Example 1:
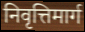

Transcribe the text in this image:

निवृत्तिमार्ग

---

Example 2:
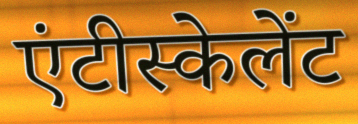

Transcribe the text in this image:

एंटीस्केलेंट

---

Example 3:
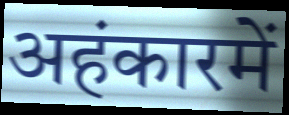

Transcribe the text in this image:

अहंकारमें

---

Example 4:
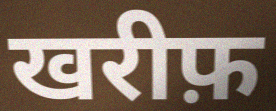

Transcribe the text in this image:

खरीफ़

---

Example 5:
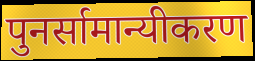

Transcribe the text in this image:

पुनर्सामान्यीकरण